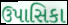
ઉપાસિકા